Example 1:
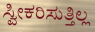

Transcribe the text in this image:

ಸ್ವೀಕರಿಸುತ್ತಿಲ್ಲ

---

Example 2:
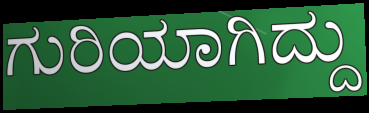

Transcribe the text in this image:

ಗುರಿಯಾಗಿದ್ದು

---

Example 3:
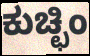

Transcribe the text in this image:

ಕುಚ್ಛಿಂ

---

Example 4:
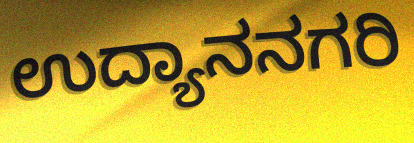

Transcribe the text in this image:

ಉದ್ಯಾನನಗರಿ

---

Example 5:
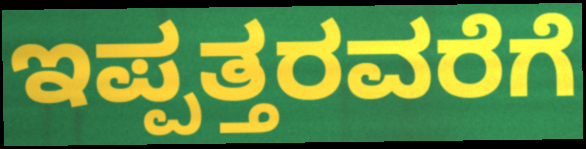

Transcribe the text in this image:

ಇಪ್ಪತ್ತರವರೆಗೆ